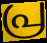
പ്ര